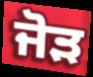
ਜੋੜ